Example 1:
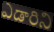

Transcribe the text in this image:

ఎడారిని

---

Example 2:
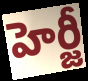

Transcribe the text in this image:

హెర్జీ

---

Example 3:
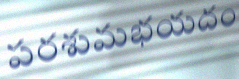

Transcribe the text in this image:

పరశుమభయదం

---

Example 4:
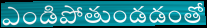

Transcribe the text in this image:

ఎండిపోతుండడంతో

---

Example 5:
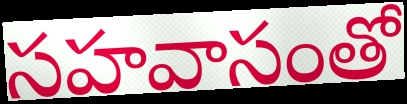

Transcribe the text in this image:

సహవాసంతో